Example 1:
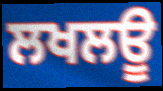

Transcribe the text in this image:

ਲਖਲਊ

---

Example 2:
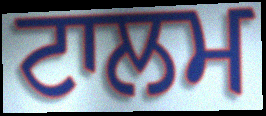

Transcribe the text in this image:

ਟਾਲਮ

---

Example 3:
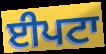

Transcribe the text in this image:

ਈਪਟਾ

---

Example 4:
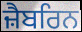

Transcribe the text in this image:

ਜ਼ੈਬਰਿਨ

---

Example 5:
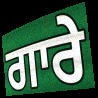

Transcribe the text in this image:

ਗਾਰੇ